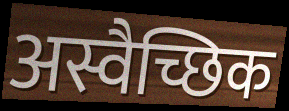
अस्वैच्छिक